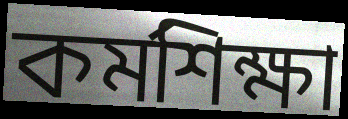
কর্মশিক্ষা